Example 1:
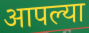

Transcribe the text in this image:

आपल्या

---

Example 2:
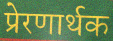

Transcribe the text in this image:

प्रेरणार्थक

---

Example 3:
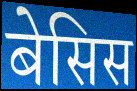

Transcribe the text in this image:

बेसिस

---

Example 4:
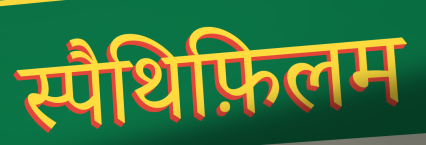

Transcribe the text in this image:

स्पैथिफ़िलम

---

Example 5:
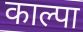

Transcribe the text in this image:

काल्पा